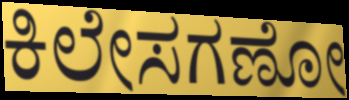
ಕಿಲೇಸಗಣೋ